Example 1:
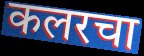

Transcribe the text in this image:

कलरचा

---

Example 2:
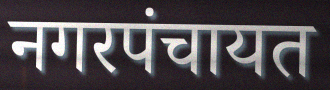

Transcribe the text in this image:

नगरपंचायत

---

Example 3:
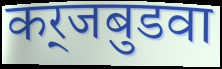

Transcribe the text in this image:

कर्जबुडवा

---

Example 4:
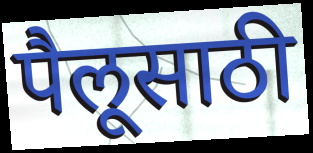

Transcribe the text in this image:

पैलूसाठी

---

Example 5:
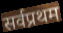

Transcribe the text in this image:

सर्वप्रथम